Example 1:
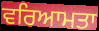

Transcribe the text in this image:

ਵਰਿਆਮਤਾ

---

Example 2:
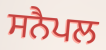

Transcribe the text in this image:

ਸਨੈਪਲ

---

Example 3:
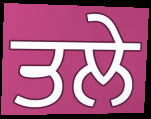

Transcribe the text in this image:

ਤਲੇ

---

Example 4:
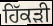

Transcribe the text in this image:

ਹਿੱਕੜੀ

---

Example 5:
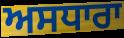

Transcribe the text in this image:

ਅਸਧਾਰਾ